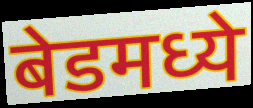
बेडमध्ये